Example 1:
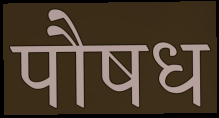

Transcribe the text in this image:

पौषध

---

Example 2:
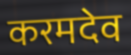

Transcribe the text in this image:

करमदेव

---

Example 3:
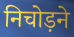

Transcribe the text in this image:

निचोड़ने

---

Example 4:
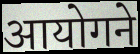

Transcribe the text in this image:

आयोगने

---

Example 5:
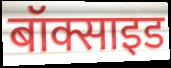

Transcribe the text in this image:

बॉक्साइड